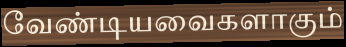
வேண்டியவைகளாகும்